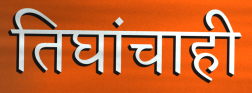
तिघांचाही